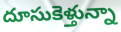
దూసుకెళ్తున్నా